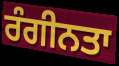
ਰੰਗੀਨਤਾ